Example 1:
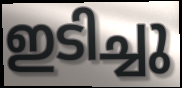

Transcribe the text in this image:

ഇടിച്ചു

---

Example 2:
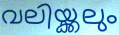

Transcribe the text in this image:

വലിയ്ക്കലും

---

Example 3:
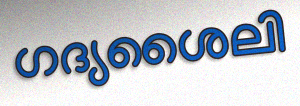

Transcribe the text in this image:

ഗദ്യശൈലി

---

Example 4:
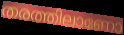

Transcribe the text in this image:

തരത്തിലാണോ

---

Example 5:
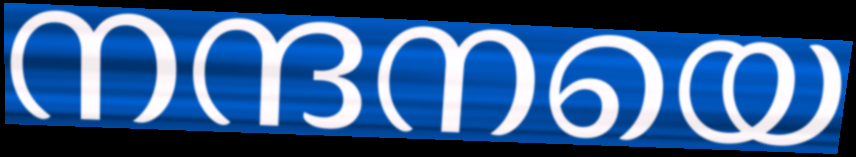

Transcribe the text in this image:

നന്ദനയെ